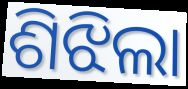
ଶିଝିଲା